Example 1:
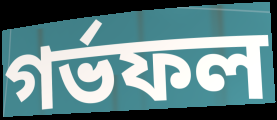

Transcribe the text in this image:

গর্ভফল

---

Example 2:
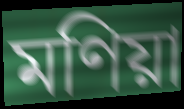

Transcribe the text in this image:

মণিয়া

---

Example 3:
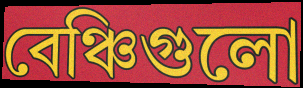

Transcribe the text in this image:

বেঞ্চিগুলো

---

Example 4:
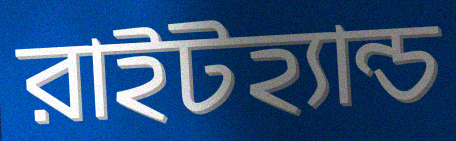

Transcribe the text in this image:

রাইটহ্যান্ড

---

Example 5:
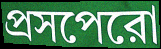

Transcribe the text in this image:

প্রসপেরো